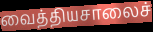
வைத்தியசாலைச்